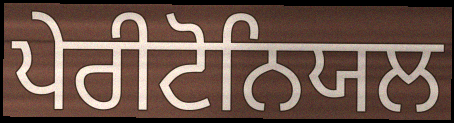
ਪੇਰੀਟੋਨਿਯਲ